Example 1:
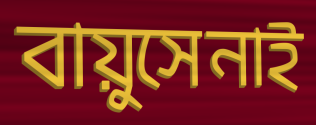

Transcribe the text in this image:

বায়ুসেনাই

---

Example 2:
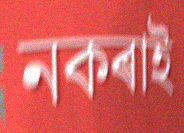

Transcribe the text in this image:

নকৰাই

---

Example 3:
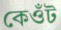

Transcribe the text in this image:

কেওঁট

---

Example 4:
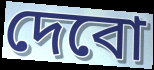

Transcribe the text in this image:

দেবো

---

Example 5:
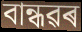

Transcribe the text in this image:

বান্ধৱৰ